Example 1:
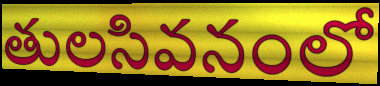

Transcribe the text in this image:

తులసివనంలో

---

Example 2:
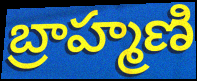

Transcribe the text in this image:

బ్రాహ్మణి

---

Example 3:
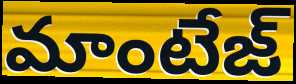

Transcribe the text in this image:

మాంటేజ్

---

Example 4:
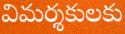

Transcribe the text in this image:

విమర్శకులకు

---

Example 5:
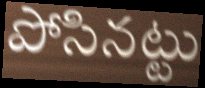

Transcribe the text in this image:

పోసినట్టు